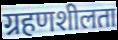
ग्रहणशीलता